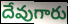
దేవుగారు